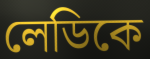
লেডিকে